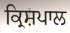
ਕ੍ਰਿਸ਼ਪਾਲ